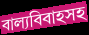
বাল্যবিবাহসহ